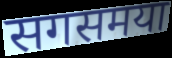
सगसमया